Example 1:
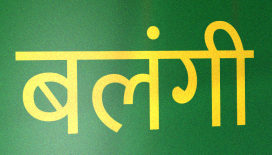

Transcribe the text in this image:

बलंगी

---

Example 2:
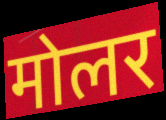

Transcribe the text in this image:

मोलर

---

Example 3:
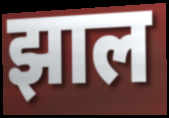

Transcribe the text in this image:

झाल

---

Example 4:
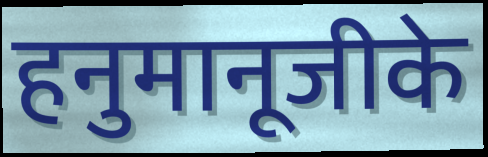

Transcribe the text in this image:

हनुमानूजीके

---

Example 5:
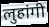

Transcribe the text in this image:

लुहांगी